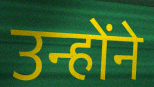
उन्‍होंने